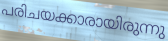
പരിചയക്കാരായിരുന്നു